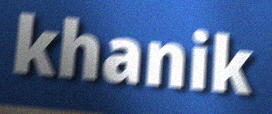
khanik